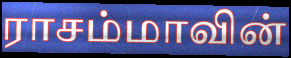
ராசம்மாவின்